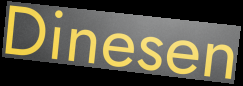
Dinesen